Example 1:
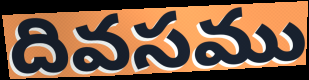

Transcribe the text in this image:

దివసము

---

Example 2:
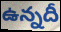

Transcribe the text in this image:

ఉన్నదీ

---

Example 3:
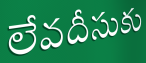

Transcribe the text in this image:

లేవదీసుకు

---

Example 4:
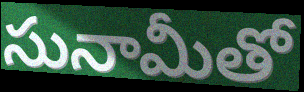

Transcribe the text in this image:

సునామీతో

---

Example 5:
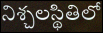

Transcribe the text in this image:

నిశ్చలస్థితిలో